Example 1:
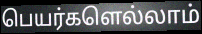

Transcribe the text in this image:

பெயர்களெல்லாம்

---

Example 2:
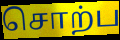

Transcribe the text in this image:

சொற்ப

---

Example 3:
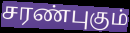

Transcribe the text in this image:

சரண்புகும்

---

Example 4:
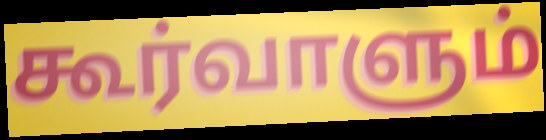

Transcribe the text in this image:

கூர்வாளும்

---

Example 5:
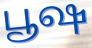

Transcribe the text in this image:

பூஷ